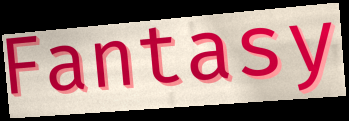
Fantasy